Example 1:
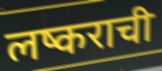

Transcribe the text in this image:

लष्कराची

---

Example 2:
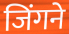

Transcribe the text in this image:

जिंगने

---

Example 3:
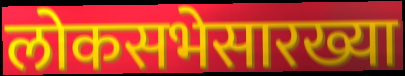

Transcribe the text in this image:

लोकसभेसारख्या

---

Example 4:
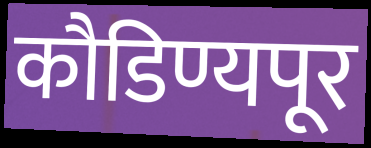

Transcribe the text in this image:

कौडिण्यपूर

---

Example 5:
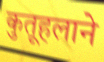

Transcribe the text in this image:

कुतूहलाने